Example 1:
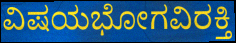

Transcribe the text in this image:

ವಿಷಯಭೋಗವಿರಕ್ತಿ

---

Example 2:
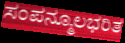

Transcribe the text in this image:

ಸಂಪನ್ಮೂಲಭರಿತ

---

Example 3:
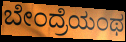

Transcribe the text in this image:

ಬೇಂದ್ರೆಯಂಥ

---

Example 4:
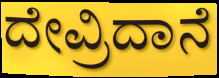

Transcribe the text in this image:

ದೇವ್ರಿದಾನೆ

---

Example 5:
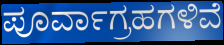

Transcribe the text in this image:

ಪೂರ್ವಾಗ್ರಹಗಳಿವೆ